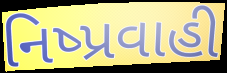
નિષ્પ્રવાહી